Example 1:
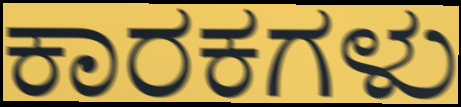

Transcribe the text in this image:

ಕಾರಕಗಳು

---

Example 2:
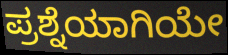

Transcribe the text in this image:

ಪ್ರಶ್ನೆಯಾಗಿಯೇ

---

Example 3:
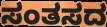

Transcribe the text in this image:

ಸಂತಸದ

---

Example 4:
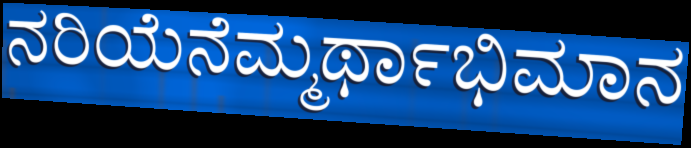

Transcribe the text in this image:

ನರಿಯೆನೆಮ್ಮರ್ಥಾಭಿಮಾನ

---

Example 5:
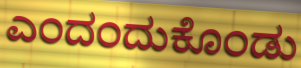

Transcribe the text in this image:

ಎಂದಂದುಕೊಂಡು